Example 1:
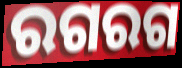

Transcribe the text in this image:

ରଗରଗ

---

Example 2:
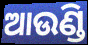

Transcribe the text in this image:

ଆଉଣ୍ଡି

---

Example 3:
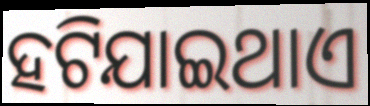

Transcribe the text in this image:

ହଟିଯାଇଥାଏ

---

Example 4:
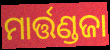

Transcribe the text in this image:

ମାର୍ତ୍ତଣ୍ଡଜା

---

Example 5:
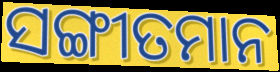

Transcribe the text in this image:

ସଙ୍ଗୀତମାନ